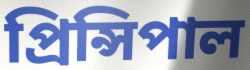
প্রিন্সিপাল